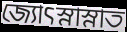
জ্যোৎস্নাস্নাত